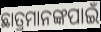
ଛାତ୍ରମାନଙ୍କପାଇଁ